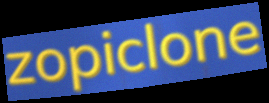
zopiclone